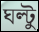
ঘল্টু